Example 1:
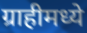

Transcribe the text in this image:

ग्राहीमध्ये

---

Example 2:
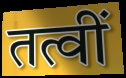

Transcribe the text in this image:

तत्वीं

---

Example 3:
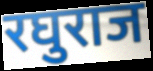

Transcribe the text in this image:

रघुराज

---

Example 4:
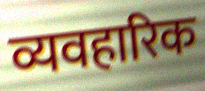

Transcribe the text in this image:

व्यवहारिक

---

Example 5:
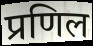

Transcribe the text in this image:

प्रणिल